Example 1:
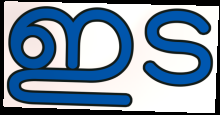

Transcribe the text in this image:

ഇട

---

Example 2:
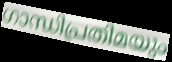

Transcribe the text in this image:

ഗാന്ധിപ്രതിമയും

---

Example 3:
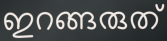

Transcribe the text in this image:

ഇറങ്ങരുത്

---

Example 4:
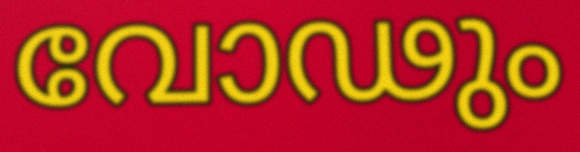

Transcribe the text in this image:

വോഢും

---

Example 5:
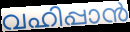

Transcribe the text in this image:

വഹിപ്പാൻ